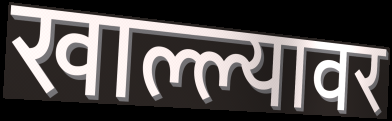
खाल्ल्यावर